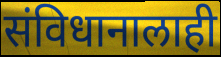
संविधानालाही